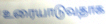
உரையாடுவதாக